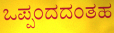
ಒಪ್ಪಂದದಂತಹ